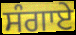
ਸੰਗਾਏ